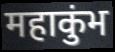
महाकुंभ